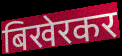
बिखेरकर